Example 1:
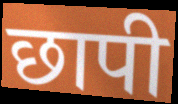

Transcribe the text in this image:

छापी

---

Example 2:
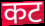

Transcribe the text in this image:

कट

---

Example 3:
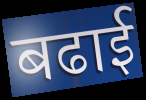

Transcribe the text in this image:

बढाई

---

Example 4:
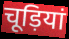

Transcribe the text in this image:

चूड़ियां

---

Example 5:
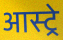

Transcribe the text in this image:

आस्ट्रे